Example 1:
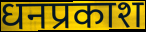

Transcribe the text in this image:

धनप्रकाश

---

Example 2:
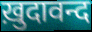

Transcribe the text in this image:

ख़ुदावन्द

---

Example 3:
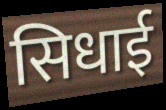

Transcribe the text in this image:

सिधाई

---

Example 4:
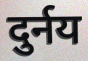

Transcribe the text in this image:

दुर्नय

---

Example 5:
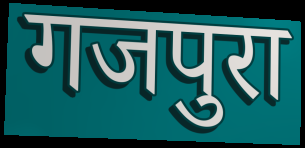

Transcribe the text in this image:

गजपुरा